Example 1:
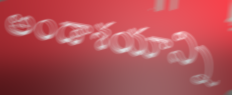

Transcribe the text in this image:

అండాశయాన్ని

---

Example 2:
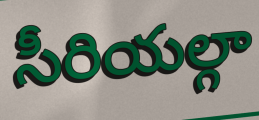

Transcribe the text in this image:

సీరియల్గా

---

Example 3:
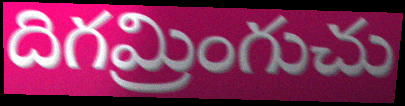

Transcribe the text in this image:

దిగమ్రింగుచు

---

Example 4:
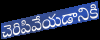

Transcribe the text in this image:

చెరిపివేయడానికి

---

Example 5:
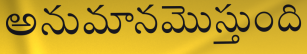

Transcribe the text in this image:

అనుమానమొస్తుంది